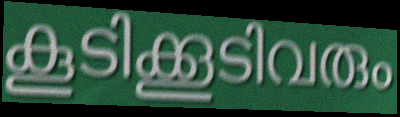
കൂടിക്കൂടിവരും